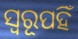
ସ୍ୱରୂପହିଁ